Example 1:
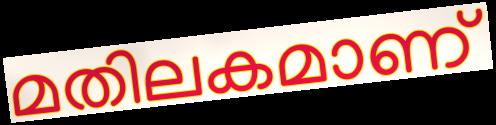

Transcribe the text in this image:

മതിലകമാണ്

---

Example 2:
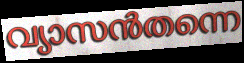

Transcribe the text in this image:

വ്യാസൻതന്നെ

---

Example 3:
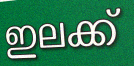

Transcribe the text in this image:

ഇലക്ക്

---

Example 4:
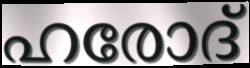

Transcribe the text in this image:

ഹരോദ്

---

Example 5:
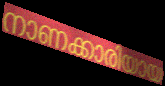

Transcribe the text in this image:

നാണക്കാരിയായ